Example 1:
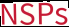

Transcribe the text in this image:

NSPs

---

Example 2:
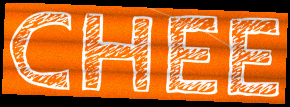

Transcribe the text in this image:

CHEE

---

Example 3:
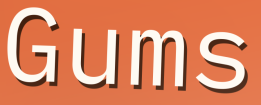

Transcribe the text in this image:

Gums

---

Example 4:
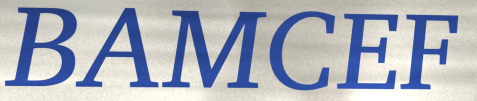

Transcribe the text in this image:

BAMCEF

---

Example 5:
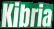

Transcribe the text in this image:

Kibria